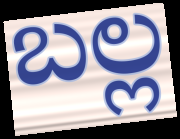
బల్ల